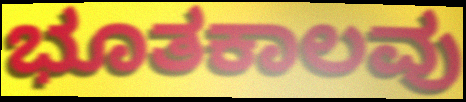
ಭೂತಕಾಲವು